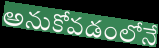
అనుకోవడంలోనే